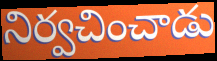
నిర్వచించాడు